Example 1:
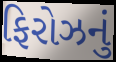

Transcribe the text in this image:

ફિરોઝનું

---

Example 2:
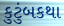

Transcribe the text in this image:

કુટુંબકથા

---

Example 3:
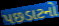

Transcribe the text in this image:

પછડાટનો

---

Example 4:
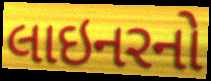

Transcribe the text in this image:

લાઇનરનો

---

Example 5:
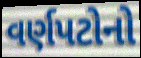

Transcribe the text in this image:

વર્ણપટોનો